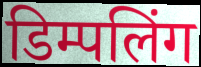
डिम्पलिंग